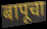
बापूचा